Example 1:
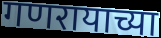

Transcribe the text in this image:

गणरायाच्या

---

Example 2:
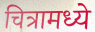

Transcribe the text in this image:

चित्रामध्ये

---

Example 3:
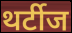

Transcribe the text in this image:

थर्टीज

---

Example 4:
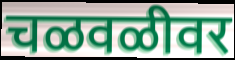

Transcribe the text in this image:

चळवळीवर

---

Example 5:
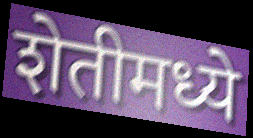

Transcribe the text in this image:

शेतीमध्ये